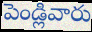
పెండ్లివారు